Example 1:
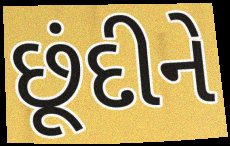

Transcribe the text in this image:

છૂંદીને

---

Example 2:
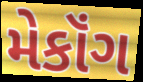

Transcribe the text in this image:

મેકૉંગ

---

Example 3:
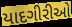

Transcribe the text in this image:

યાદગીરીઓ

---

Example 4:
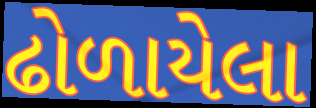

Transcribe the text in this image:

ઢોળાયેલા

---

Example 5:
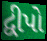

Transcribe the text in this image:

દ્વીપો